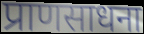
प्राणसाधना